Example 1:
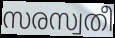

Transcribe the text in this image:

സരസ്വതീ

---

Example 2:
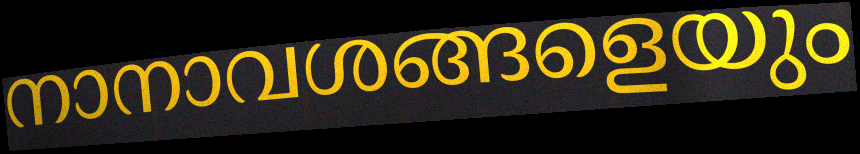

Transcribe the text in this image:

നാനാവശങ്ങളെയും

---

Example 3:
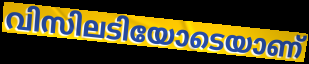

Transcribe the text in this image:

വിസിലടിയോടെയാണ്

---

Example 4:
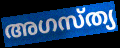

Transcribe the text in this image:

അഗസ്ത്യ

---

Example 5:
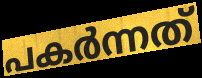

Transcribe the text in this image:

പകർന്നത്